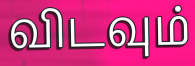
விடவும்